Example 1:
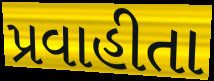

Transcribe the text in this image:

પ્રવાહીતા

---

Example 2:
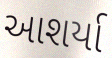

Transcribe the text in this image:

આશર્યા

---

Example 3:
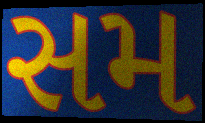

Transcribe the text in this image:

સમ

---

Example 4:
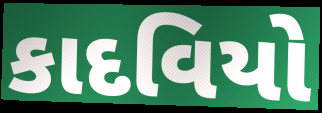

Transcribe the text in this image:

કાદવિયો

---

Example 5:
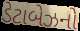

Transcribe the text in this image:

ડેટાબેઝનો